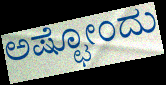
ಅಷ್ಟೋಂದು